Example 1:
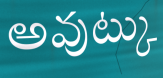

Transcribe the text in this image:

అవుట్కు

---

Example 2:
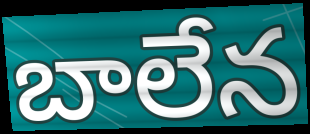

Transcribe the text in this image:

బాలేన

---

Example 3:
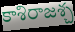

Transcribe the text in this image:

కాశిరాజశ్చ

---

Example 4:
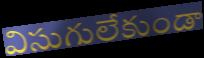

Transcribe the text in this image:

విసుగులేకుండా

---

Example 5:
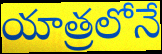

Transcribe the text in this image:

యాత్రలోనే